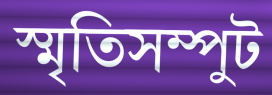
স্মৃতিসম্পুট